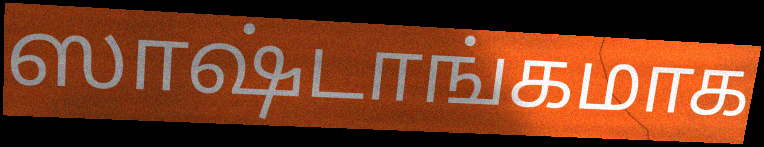
ஸாஷ்டாங்கமாக